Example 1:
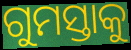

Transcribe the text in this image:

ଗୁମସ୍ତାକୁ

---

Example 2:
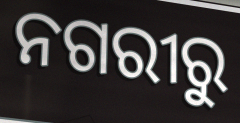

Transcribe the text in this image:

ନଗରୀରୁ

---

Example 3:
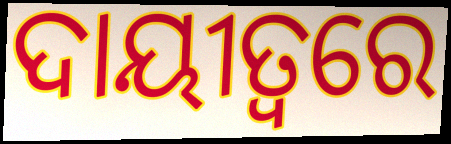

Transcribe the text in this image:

ଦାୟୀତ୍ଵରେ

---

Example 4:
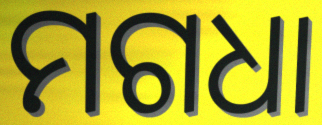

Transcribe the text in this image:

ମଗଧା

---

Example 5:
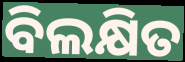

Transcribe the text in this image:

ବିଲକ୍ଷିତ